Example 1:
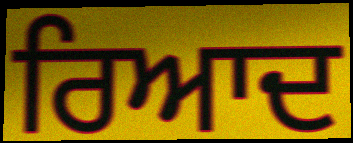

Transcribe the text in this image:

ਰਿਆਦ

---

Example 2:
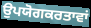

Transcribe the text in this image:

ਉਪਯੋਗਕਰਤਾਵਾਂ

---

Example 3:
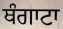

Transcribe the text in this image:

ਥੰਗਾਟਾ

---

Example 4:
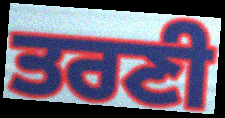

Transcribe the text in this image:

ਤਰਣੀ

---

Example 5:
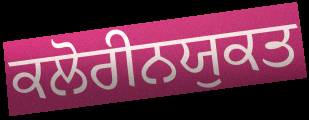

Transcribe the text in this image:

ਕਲੋਰੀਨਯੁਕਤ